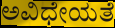
ಅವಿಧೇಯತೆ